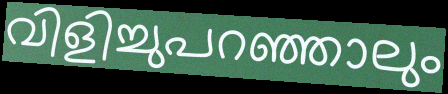
വിളിച്ചുപറഞ്ഞാലും